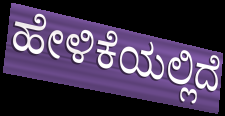
ಹೇಳಿಕೆಯಲ್ಲಿದೆ